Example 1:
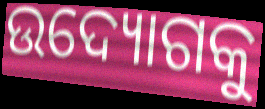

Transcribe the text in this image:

ଉଦ୍ୟୋଗକୁ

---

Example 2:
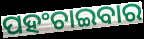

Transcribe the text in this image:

ପହଂଚାଇବାର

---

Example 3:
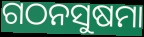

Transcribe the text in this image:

ଗଠନସୁଷମା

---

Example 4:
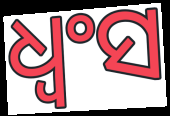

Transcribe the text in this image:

ଧ୍ଵଂସ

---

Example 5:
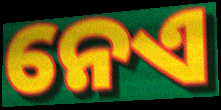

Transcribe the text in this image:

ନେଏ